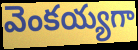
వెంకయ్యగా